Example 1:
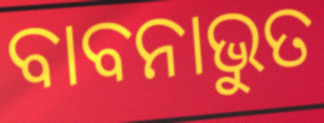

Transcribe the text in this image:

ବାବନାଭୁତ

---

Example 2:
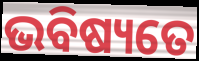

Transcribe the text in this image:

ଭବିଷ୍ୟତେ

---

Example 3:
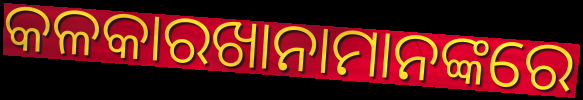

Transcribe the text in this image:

କଳକାରଖାନାମାନଙ୍କରେ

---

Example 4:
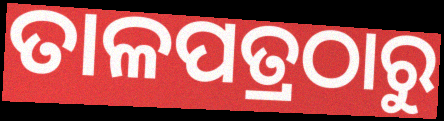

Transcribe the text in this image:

ତାଳପତ୍ରଠାରୁ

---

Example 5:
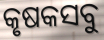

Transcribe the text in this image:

କୃଷକସବୁ